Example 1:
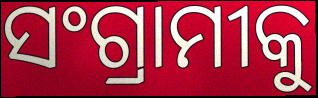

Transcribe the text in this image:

ସଂଗ୍ରାମୀକୁ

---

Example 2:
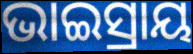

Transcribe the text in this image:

ଭାଇସ୍ରାୟ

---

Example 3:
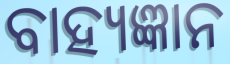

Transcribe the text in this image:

ବାହ୍ୟଜ୍ଞାନ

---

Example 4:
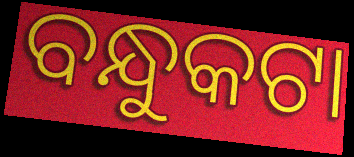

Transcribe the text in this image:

ବନ୍ଧୁକଟା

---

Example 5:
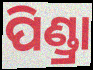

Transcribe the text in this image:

ପିଣ୍ଡ୍ରା